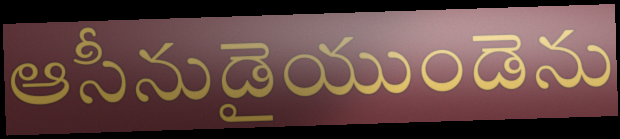
ఆసీనుడైయుండెను